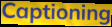
Captioning